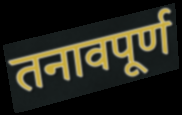
तनावपूर्ण